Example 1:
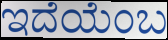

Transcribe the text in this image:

ಇದೆಯೆಂಬ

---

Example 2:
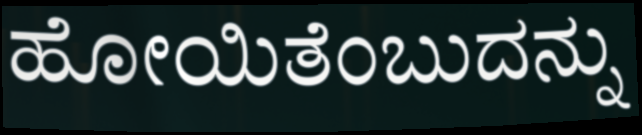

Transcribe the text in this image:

ಹೋಯಿತೆಂಬುದನ್ನು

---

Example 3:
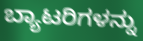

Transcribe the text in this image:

ಬ್ಯಾಟರಿಗಳನ್ನು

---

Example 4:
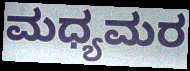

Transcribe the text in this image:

ಮಧ್ಯಮರ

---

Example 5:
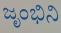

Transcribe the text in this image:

ಜೃಂಭಿನಿ